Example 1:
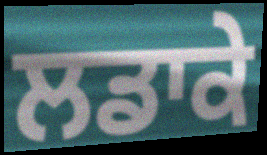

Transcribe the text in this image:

ਲਡਾਕੇ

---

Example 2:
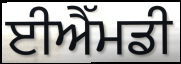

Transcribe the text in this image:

ਈਐੱਮਡੀ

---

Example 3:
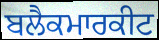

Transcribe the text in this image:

ਬਲੈਕਮਾਰਕੀਟ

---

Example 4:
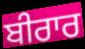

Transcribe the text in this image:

ਬੀਰਾਰ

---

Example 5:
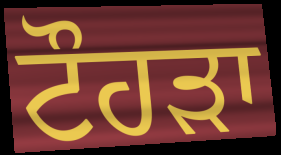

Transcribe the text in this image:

ਟੌਹਡ਼ਾ